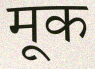
मूक